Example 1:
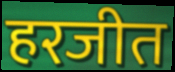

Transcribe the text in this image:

हरजीत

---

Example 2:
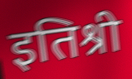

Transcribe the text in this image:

इतिश्री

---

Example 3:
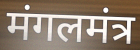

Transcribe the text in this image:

मंगलमंत्र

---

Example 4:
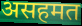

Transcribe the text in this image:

असहमत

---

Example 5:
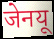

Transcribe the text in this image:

जेनयू